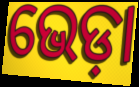
ଭେଡ଼ା